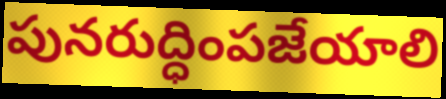
పునరుద్ధింపజేయాలి